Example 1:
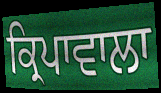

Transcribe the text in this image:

ਕ੍ਰਿਪਾਵਾਲਾ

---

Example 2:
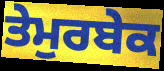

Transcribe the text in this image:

ਤੇਮੁਰਬੇਕ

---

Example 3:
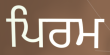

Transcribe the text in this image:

ਪਿਰਮ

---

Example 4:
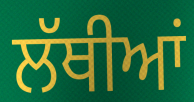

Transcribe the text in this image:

ਲੱਥੀਆਂ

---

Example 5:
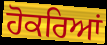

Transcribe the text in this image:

ਹੋਕਰਿਆਂ